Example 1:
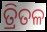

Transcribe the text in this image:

ତ୍ରିତଳ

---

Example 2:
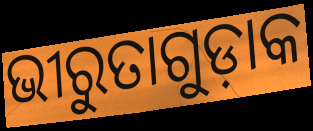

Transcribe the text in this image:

ଭୀରୁତାଗୁଡ଼ାକ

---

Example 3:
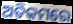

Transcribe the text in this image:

ଅତିକମରେ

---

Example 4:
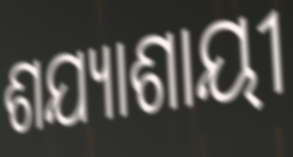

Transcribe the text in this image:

ଶଯ୍ୟାଶାୟୀ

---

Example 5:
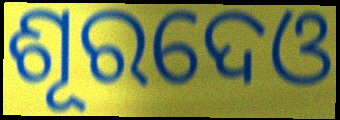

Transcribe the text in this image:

ଶୂରଦେଓ